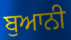
ਬੁਆਨੀ